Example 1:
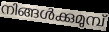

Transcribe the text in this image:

നിങ്ങൾക്കുമുമ്പ്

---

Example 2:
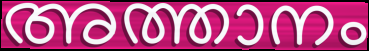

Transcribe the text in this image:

അത്താനം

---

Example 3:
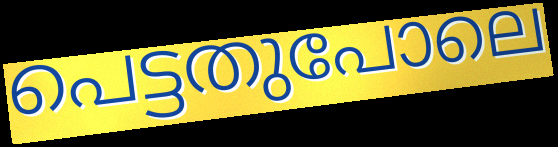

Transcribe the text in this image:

പെട്ടതുപോലെ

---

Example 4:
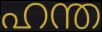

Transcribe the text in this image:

ഹന്ത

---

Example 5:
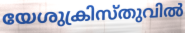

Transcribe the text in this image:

യേശുക്രിസ്തുവിൽ